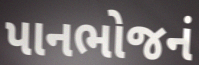
પાનભોજનં